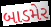
બાડમેર